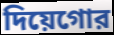
দিয়েগোর